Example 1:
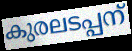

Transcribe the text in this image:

കുരലടപ്പന്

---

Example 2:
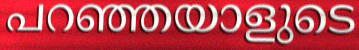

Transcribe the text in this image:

പറഞ്ഞയാളുടെ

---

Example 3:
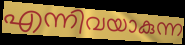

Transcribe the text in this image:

എന്നിവയാകുന്ന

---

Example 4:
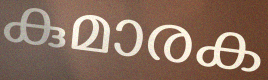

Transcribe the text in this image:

കുമാരക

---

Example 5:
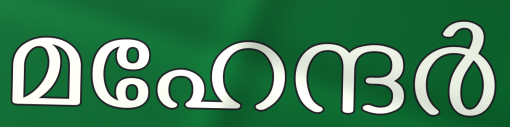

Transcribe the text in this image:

മഹേന്ദർ